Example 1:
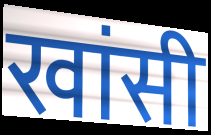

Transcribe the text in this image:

खांसी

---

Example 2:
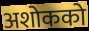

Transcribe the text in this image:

अशोकको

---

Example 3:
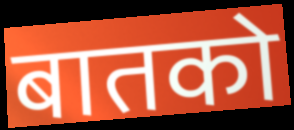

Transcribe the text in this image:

बातको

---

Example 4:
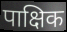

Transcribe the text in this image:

पाक्षिक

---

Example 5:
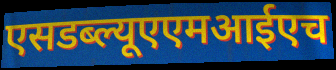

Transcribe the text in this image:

एसडब्ल्यूएएमआईएच